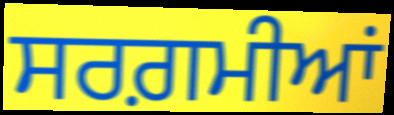
ਸਰਗ਼ਮੀਆਂ